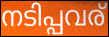
നടിപ്പവര്